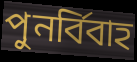
পুনৰ্বিবাহ